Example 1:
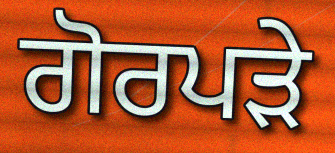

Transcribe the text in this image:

ਗੋਰਪੜੇ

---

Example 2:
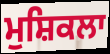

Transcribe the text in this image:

ਮੁਸ਼ਿਕਲਾ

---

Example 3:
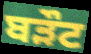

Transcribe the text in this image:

ਬੜੌਟ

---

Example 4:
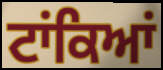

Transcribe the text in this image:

ਟਾਂਕਿਆਂ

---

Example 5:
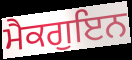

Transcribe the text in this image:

ਮੈਕਗੁਇਨ